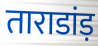
ताराडांड़